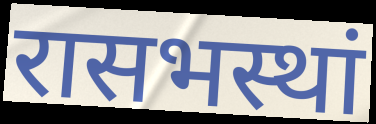
रासभस्थां